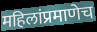
महिलांप्रमाणेच